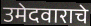
उमेदवाराचे